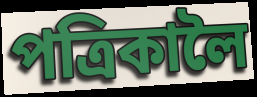
পত্ৰিকালৈ